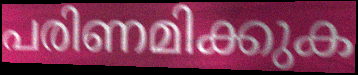
പരിണമിക്കുക